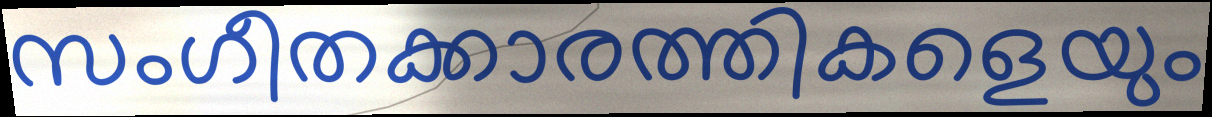
സംഗീതക്കാരത്തികളെയും